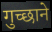
गुच्छाने